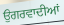
ਉਗਰਵਾਦੀਆਂ